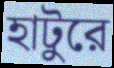
হাটুরে